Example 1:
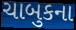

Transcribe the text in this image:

ચાબુકના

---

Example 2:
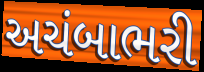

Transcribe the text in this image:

અચંબાભરી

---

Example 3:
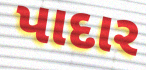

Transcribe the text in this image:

પાદાર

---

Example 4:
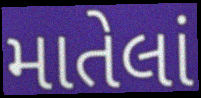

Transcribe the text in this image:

માતેલાં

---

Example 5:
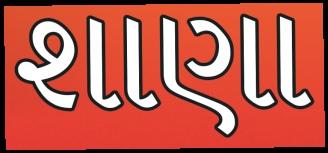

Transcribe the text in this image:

શાણા